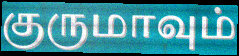
குருமாவும்